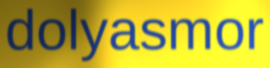
dolyasmor